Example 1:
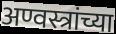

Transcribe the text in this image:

अण्वस्त्रांच्या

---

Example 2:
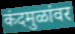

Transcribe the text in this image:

कंदमुळांवर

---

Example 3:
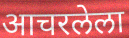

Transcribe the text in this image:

आचरलेला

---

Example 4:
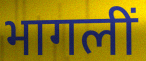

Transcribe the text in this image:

भागलीं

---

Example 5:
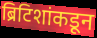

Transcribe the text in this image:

ब्रिटिशांकडून